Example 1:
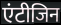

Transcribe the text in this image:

एंटीजिन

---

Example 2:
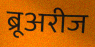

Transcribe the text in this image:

ब्रूअरीज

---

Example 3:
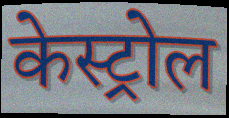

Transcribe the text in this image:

केस्ट्रोल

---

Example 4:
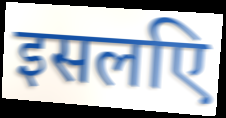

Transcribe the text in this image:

इसलएि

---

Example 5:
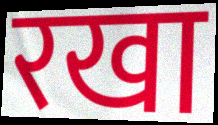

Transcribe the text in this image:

रखा